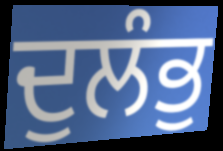
ਦੁਲੰਭੁ